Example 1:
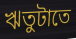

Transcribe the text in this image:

ঋতুটাতে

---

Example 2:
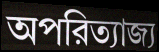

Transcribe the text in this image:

অপরিত্যাজ্য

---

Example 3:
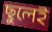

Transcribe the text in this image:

ছুলেই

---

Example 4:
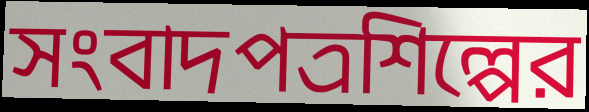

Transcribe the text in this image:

সংবাদপত্রশিল্পের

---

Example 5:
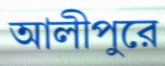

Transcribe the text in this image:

আলীপুরে